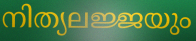
നിത്യലജ്ജയും